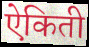
ऐकिती